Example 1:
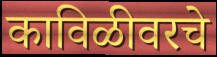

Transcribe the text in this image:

काविळीवरचे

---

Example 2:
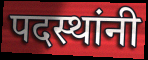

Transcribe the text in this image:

पदस्थांनी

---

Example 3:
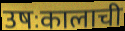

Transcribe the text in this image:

उषःकालाची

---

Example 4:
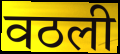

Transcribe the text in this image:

वठली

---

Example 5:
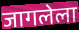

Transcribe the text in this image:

जागलेला